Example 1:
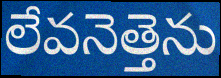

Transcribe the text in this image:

లేవనెత్తెను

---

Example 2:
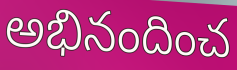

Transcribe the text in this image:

అభినందించ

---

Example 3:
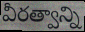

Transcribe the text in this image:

వీరత్వాన్ని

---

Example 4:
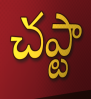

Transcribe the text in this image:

చఎ్టా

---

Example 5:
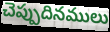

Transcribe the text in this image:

చెప్పుదినములు